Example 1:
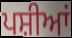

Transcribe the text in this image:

ਪਸ਼ੀਆਂ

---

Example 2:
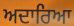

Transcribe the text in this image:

ਅਦਾਰਿਆ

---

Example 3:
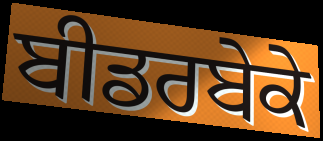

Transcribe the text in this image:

ਬੀਡਰਬੇਕੇ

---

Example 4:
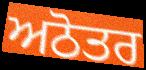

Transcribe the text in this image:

ਅਠੋਤਰ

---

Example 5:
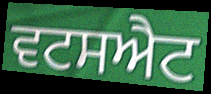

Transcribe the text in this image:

ਵਟਸਐਟ